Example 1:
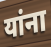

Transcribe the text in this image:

यांना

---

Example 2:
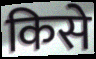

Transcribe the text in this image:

किसे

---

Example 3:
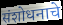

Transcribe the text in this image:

संशोधनाचे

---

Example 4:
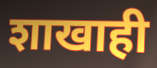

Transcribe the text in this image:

शाखाही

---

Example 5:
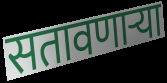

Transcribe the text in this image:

सतावणार्‍या